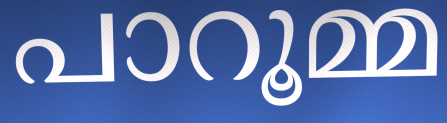
പാറൂമ്മ